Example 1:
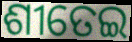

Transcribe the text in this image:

ଶୀତେଇ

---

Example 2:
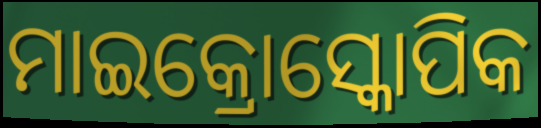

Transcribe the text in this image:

ମାଇକ୍ରୋସ୍କୋପିକ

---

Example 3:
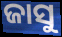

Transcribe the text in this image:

ଜାସୁ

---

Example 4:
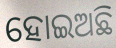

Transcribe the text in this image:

ହୋଇଅଛି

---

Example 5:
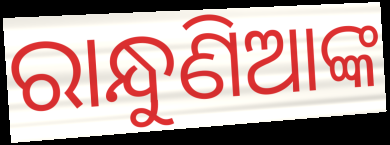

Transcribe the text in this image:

ରାନ୍ଧୁଣିଆଙ୍କ